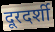
दूरदर्शी